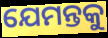
ଯେମନ୍ତକୁ